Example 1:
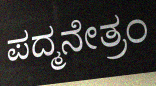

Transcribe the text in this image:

ಪದ್ಮನೇತ್ರಂ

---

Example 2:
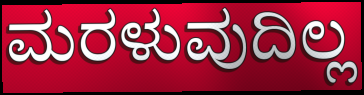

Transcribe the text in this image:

ಮರಳುವುದಿಲ್ಲ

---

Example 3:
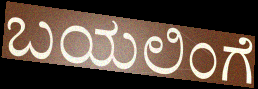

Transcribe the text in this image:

ಬಯಲಿಂಗೆ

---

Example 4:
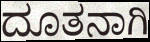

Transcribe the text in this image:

ದೂತನಾಗಿ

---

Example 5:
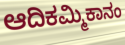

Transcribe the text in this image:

ಆದಿಕಮ್ಮಿಕಾನಂ